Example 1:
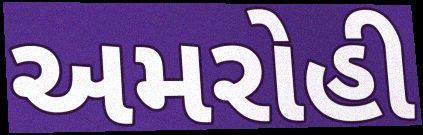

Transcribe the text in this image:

અમરોહી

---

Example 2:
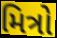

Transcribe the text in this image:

મિત્રો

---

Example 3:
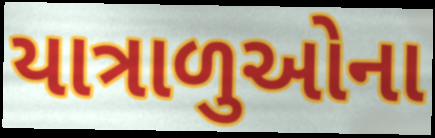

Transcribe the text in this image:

યાત્રાળુઓના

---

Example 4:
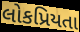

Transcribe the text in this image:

લોકપ્રિયતા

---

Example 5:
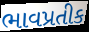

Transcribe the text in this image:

ભાવપ્રતીક